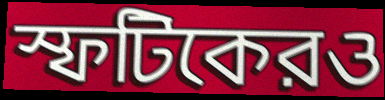
স্ফটিকেরও